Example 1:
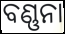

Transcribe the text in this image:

ବଣ୍ଣନା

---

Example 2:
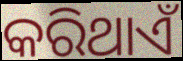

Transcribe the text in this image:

କରିଥାଏଁ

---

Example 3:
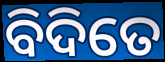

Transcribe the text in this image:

ବିଦିତେ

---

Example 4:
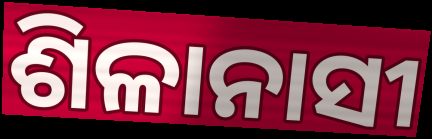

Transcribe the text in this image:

ଶିଳାନାସୀ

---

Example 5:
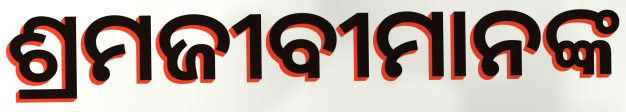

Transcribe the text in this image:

ଶ୍ରମଜୀବୀମାନଙ୍କ